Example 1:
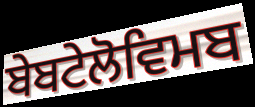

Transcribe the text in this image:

ਬੇਬਟੇਲੋਵਿਮਬ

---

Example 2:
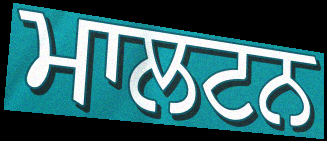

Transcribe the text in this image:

ਮਾਲਟਨ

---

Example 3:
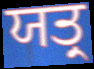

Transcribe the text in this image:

ਯਤ੍ਰ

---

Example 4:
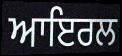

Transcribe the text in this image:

ਆਇਰਲ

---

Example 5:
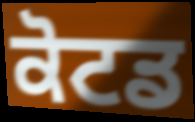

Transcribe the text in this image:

ਕੋਟਡ